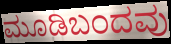
ಮೂಡಿಬಂದವು